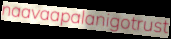
naavaapalanigotrust